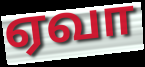
ஏவா